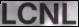
LCNL